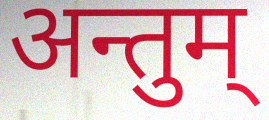
अन्तुम्